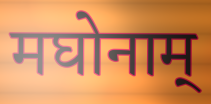
मघोनाम्